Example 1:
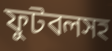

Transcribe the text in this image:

ফুটবলসহ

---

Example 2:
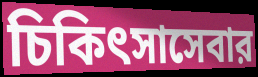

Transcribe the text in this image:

চিকিৎসাসেবার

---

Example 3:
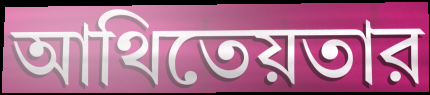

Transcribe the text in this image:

আথিতেয়তার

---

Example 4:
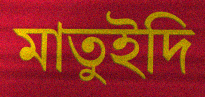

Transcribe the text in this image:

মাতুইদি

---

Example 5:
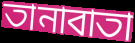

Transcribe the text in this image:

তানাবাতা